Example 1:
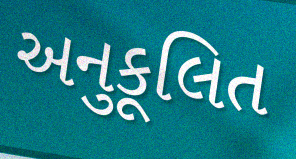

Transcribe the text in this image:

અનુકૂલિત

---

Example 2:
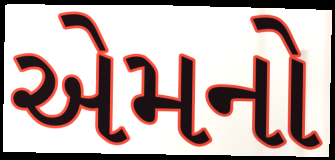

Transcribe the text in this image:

એમનો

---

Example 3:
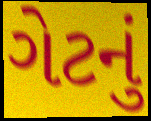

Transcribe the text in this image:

ગેટનું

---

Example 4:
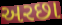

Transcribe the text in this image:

અરછા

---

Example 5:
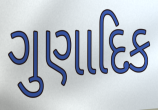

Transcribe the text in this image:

ગુણાદિક